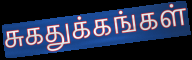
சுகதுக்கங்கள்